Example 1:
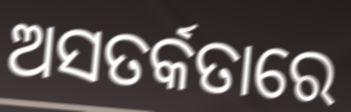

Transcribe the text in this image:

ଅସତର୍କତାରେ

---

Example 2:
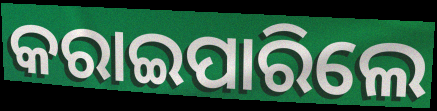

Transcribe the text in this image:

କରାଇପାରିଲେ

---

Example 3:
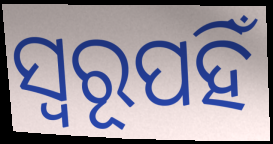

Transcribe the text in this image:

ସ୍ୱରୂପହିଁ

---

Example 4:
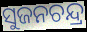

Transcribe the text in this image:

ସୁଜନଚନ୍ଦ୍ର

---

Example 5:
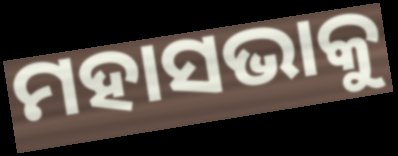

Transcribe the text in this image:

ମହାସଭାକୁ